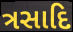
ત્રસાદિ